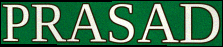
PRASAD